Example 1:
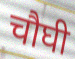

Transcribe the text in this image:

चौघी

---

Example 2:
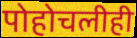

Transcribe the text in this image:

पोहोचलीही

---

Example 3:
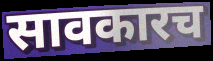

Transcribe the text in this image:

सावकारच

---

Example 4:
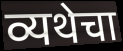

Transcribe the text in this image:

व्यथेचा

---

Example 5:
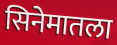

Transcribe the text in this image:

सिनेमातला